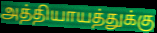
அத்தியாயத்துக்கு